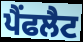
ਪੈਂਫਲੈਟ